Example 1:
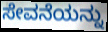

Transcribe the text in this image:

ಸೇವನೆಯನ್ನು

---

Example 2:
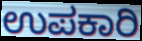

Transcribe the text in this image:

ಉಪಕಾರಿ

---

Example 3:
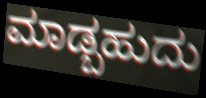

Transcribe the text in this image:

ಮಾಡ್ಬಹುದು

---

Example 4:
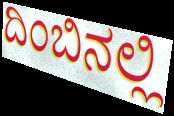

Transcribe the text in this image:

ದಿಂಬಿನಲ್ಲಿ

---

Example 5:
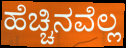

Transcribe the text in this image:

ಹೆಚ್ಚಿನವೆಲ್ಲ